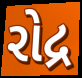
રોદ્ર